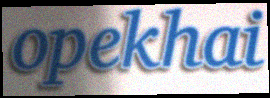
opekhai